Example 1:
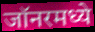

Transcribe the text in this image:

जॉनरमध्ये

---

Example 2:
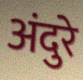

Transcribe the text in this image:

अंदुरे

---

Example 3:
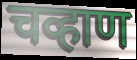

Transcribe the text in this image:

चव्हाण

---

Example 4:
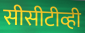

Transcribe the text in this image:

सीसीटीव्ही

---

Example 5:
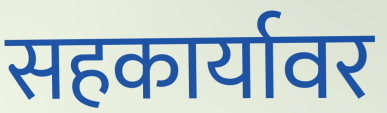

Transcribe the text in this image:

सहकार्यावर